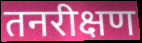
तनरीक्षण